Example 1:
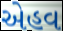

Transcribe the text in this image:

એહવ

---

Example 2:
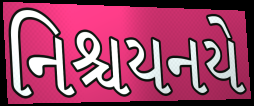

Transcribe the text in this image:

નિશ્ચયનયે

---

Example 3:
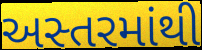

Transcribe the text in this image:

અસ્તરમાંથી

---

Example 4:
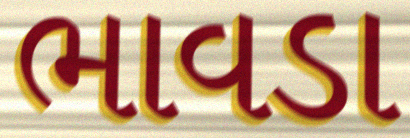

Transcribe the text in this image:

ભાવડા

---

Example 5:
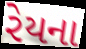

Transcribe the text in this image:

રેયના